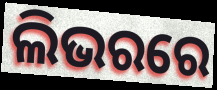
ଲିଭରରେ